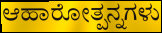
ಆಹಾರೋತ್ಪನ್ನಗಳು